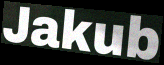
Jakub